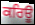
ਕਰਿਊ